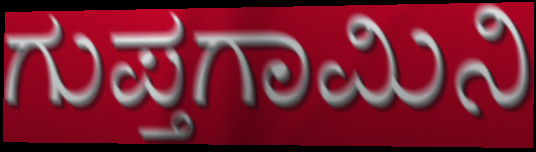
ಗುಪ್ತಗಾಮಿನಿ